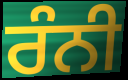
ਰੰਨੀ